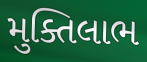
મુક્તિલાભ